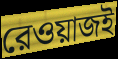
রেওয়াজই